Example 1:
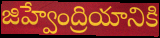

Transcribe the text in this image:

జిహ్వేంద్రియానికి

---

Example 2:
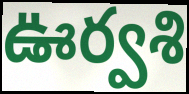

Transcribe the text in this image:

ఊర్వశి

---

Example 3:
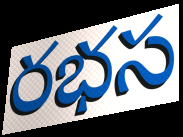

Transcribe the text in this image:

రభస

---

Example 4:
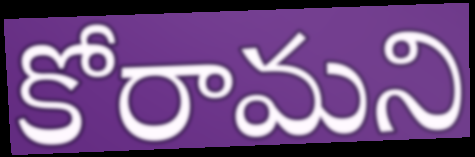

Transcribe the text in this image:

కోరామని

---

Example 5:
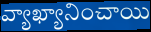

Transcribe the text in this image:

వ్యాఖ్యానించాయి